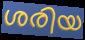
ശരിയ